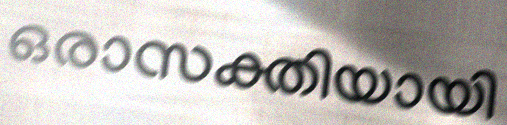
ഒരാസക്തിയായി